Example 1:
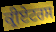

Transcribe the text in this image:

ਕ੍ਰੀਏਟਰਸ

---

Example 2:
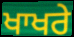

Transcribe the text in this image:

ਖਾਖਰੇ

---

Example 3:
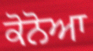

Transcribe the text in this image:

ਕੋਨੋਆ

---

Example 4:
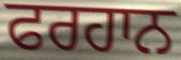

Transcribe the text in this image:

ਫਰਹਾਨ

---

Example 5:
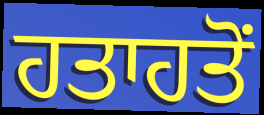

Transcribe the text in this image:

ਹਤਾਹਤੋਂ